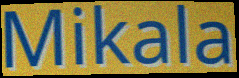
Mikala